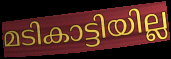
മടികാട്ടിയില്ല